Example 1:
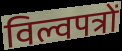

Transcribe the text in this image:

विल्वपत्रों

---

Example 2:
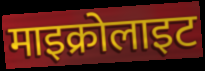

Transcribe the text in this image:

माइक्रोलाइट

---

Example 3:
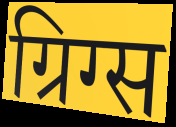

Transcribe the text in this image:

ग्रिग्स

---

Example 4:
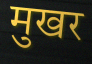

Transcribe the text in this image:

मुखर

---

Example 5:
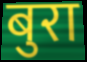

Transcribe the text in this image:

बुरा